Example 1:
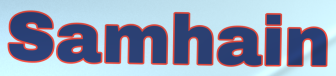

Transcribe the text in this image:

Samhain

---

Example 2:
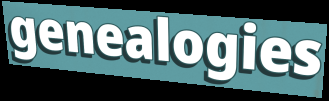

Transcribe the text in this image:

genealogies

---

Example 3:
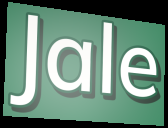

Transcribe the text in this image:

Jale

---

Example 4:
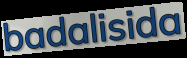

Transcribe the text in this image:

badalisida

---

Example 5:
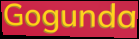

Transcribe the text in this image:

Gogunda